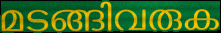
മടങ്ങിവരുക